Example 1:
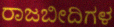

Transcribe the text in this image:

ರಾಜಬೀದಿಗಳ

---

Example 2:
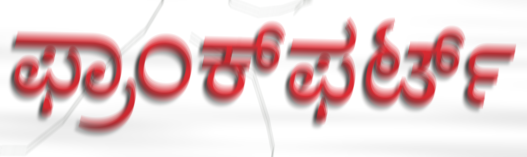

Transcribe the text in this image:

ಫ್ರಾಂಕ್‌ಫರ್ಟ್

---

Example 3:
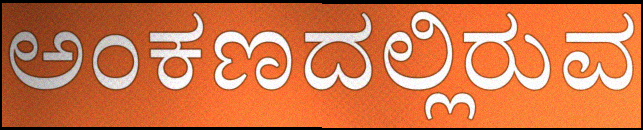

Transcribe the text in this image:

ಅಂಕಣದಲ್ಲಿರುವ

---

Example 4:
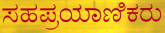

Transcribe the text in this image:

ಸಹಪ್ರಯಾಣಿಕರು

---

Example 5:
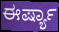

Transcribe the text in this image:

ಈರ್ಷ್ಯಾ